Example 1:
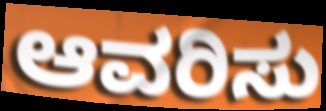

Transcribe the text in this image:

ಆವರಿಸು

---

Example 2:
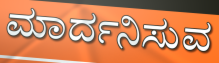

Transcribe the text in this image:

ಮಾರ್ದನಿಸುವ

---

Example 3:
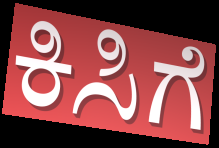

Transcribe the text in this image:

ಕಿಸಿಗೆ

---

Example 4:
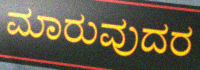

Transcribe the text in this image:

ಮಾರುವುದರ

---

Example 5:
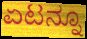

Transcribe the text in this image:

ಏಟನ್ನೂ